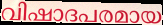
വിഷാദപരമായ